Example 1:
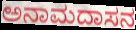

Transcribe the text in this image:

ಅನಾಮದಾಸನ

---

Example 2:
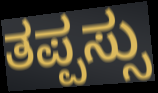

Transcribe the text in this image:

ತಪ್ಪಸ್ಸು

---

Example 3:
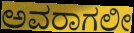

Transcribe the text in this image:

ಅವರಾಗಲೀ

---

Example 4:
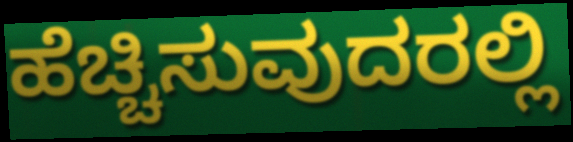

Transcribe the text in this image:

ಹೆಚ್ಚಿಸುವುದರಲ್ಲಿ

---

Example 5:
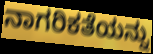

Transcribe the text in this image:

ನಾಗರಿಕತೆಯನ್ನು